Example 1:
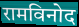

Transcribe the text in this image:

रामविनोद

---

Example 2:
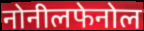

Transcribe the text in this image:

नोनीलफेनोल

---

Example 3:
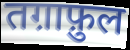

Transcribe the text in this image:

तग़ाफ़ुल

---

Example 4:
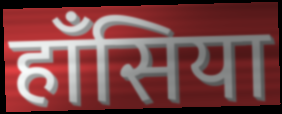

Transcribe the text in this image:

हाँसिया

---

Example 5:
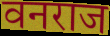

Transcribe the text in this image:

वनराज